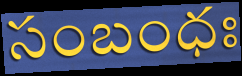
సంబంధః